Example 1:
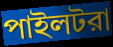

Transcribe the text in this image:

পাইলটরা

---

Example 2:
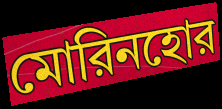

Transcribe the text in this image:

মোরিনহোর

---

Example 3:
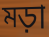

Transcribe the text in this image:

মড়া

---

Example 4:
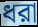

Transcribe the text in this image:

ধরা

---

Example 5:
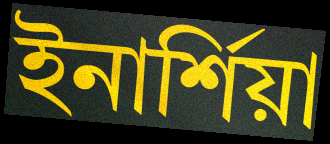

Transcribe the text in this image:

ইনার্শিয়া